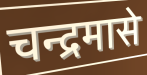
चन्द्रमासे